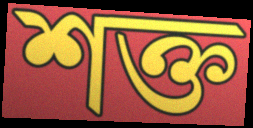
শক্ত